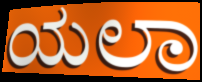
ಯಲಾ